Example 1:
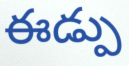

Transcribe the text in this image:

ఈడ్పు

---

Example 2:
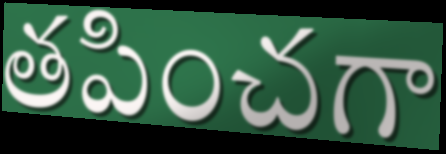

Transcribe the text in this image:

తపించగా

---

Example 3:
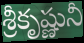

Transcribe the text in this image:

శ్రీకృష్ణునీ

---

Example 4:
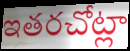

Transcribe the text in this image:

ఇతరచోట్లా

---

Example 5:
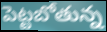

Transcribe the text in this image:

పెట్టబోతున్న